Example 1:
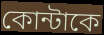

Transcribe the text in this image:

কোন্টাকে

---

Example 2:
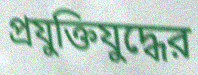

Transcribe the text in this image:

প্রযুক্তিযুদ্ধের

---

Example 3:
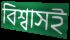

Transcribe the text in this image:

বিশ্বাসই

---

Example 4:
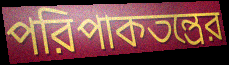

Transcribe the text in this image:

পরিপাকতন্ত্রের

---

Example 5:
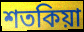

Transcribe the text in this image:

শতকিয়া